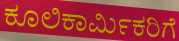
ಕೂಲಿಕಾರ್ಮಿಕರಿಗೆ